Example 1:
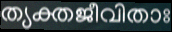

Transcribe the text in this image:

ത്യക്തജീവിതാഃ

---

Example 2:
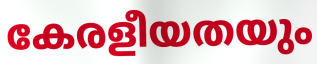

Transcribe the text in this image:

കേരളീയതയും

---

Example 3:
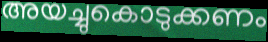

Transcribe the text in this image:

അയച്ചുകൊടുക്കണം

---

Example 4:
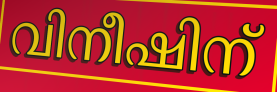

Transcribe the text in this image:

വിനീഷിന്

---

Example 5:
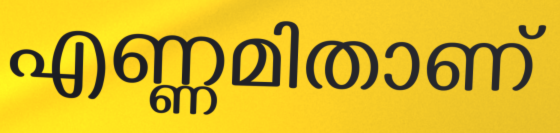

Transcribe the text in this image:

എണ്ണമിതാണ്